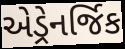
એડ્રેનર્જિક